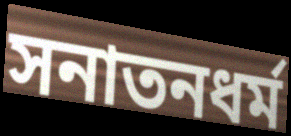
সনাতনধর্ম